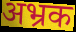
अभ्रक